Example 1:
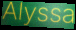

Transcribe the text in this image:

Alyssa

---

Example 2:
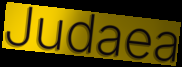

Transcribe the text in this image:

Judaea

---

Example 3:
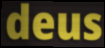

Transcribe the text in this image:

deus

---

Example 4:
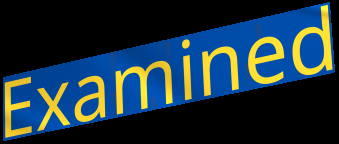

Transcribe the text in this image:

Examined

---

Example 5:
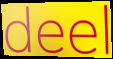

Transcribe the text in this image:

deel